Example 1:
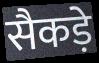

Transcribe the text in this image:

सैकड़े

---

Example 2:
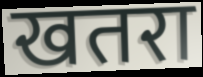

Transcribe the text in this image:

खतरा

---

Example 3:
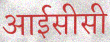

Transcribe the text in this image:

आईसीसी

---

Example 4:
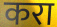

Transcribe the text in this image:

करा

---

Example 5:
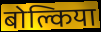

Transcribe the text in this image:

बोल्किया